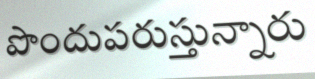
పొందుపరుస్తున్నారు